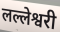
लल्लेश्वरी